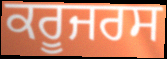
ਕਰੂਜਰਸ